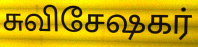
சுவிசேஷகர்